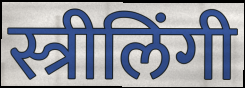
स्त्रीलिंगी